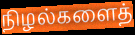
நிழல்களைத்